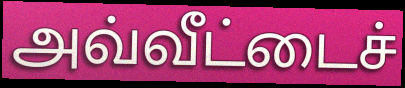
அவ்வீட்டைச்